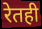
रेतही